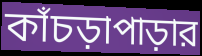
কাঁচড়াপাড়ার